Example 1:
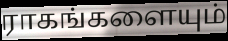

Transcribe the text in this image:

ராகங்களையும்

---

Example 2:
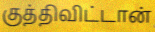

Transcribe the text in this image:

குத்திவிட்டான்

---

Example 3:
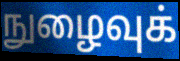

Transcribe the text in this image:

நுழைவுக்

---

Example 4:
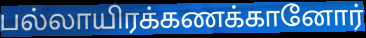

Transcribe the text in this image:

பல்லாயிரக்கணக்கானோர்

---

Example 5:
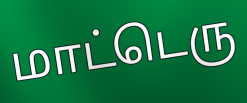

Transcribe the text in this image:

மாட்டெரு